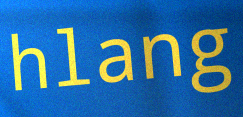
hlang